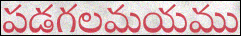
పడగలమయము